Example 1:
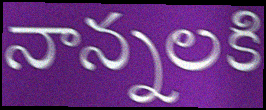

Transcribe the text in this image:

నాన్నలకి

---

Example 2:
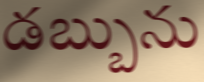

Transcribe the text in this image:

డబ్బును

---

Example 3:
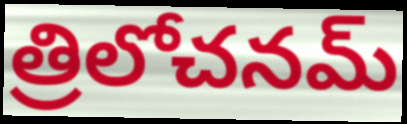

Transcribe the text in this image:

త్రిలోచనమ్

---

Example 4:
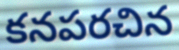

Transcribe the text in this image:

కనపరచిన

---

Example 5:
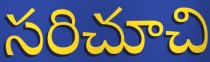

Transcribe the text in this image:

సరిచూచి